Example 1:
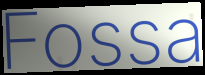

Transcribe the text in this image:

Fossa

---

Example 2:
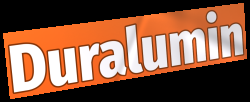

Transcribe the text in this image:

Duralumin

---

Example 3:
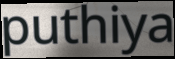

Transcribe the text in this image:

puthiya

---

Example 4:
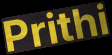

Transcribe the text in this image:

Prithi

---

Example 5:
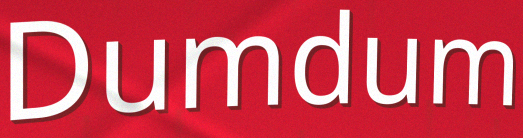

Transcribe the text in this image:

Dumdum